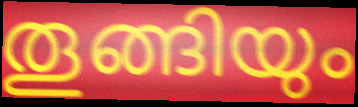
തൂങ്ങിയും